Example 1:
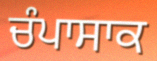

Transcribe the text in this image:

ਚੰਪਾਸਾਕ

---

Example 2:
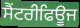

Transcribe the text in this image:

ਸੈਂਟਰੀਫਿਊਜ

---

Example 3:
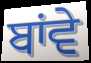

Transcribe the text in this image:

ਬਾਂਵੇ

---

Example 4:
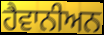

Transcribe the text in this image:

ਹੈਵਾਨੀਅਨ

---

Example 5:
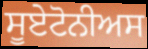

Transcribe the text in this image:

ਸੂਏਟੋਨੀਅਸ